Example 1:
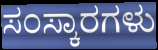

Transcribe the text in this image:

ಸಂಸ್ಕಾರಗಳು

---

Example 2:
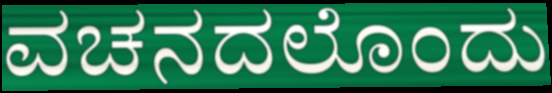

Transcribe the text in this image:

ವಚನದಲೊಂದು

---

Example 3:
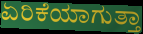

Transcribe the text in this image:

ಏರಿಕೆಯಾಗುತ್ತಾ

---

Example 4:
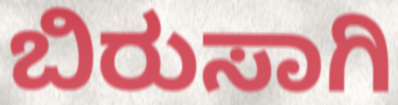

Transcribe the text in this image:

ಬಿರುಸಾಗಿ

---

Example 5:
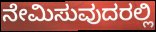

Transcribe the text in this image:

ನೇಮಿಸುವುದರಲ್ಲಿ